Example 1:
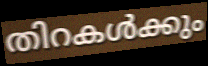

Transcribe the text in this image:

തിറകൾക്കും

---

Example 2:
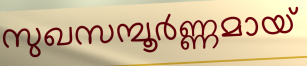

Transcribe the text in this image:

സുഖസമ്പൂർണ്ണമായ്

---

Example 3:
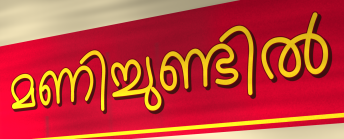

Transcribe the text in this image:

മണിച്ചുണ്ടിൽ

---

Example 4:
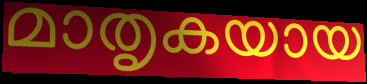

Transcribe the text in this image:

മാതൃകയായ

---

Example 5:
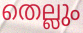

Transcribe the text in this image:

തെല്ലും